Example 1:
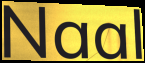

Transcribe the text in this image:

Naal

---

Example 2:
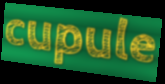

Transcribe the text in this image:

cupule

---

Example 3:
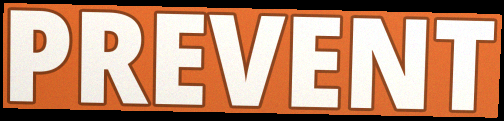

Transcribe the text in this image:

PREVENT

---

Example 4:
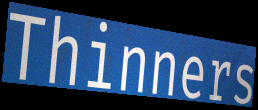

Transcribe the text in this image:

Thinners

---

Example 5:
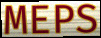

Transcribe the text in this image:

MEPS